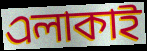
এলাকাই